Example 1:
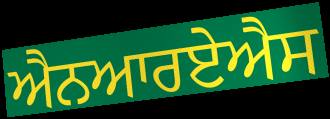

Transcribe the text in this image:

ਐਨਆਰਏਐਸ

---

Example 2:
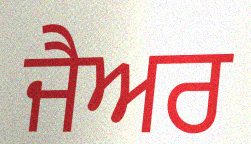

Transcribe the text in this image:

ਜੈਅਰ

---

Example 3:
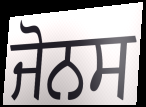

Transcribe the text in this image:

ਜੋਨਸ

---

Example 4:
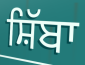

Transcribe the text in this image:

ਸ਼ਿੱਬਾ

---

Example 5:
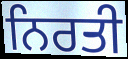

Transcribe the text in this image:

ਨਿਰਤੀ